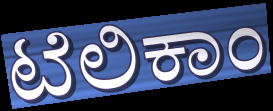
ಟೆಲಿಕಾಂ